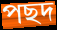
পছদ